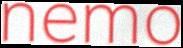
nemo